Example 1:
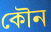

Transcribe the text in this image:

কৌন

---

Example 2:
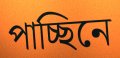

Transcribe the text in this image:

পাচ্ছিনে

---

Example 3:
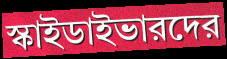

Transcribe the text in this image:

স্কাইডাইভারদের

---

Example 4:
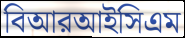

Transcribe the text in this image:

বিআরআইসিএম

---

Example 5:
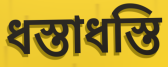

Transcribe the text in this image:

ধস্তাধস্তি